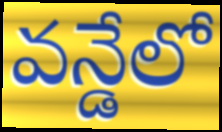
వన్డేలో